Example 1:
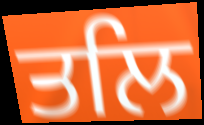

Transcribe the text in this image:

ਤਲਿ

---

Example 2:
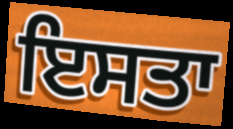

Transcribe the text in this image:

ਇਸਤਾ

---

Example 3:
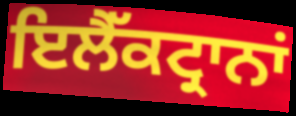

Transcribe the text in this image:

ਇਲੈੱਕਟ੍ਰਾਨਾਂ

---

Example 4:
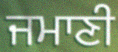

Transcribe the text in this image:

ਜਮਾਣੀ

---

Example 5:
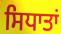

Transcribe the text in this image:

ਸਿਧਾਤਾਂ